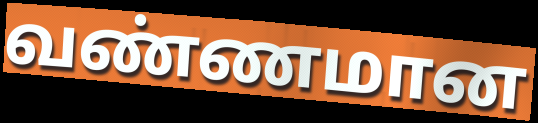
வண்ணமான